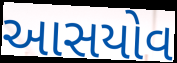
આસયોવ